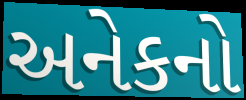
અનેકનો